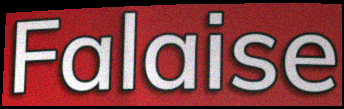
Falaise